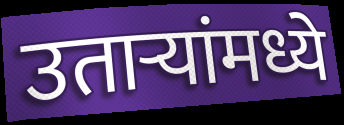
उतार्‍यांमध्ये